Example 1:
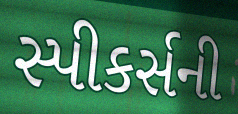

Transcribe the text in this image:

સ્પીકર્સની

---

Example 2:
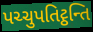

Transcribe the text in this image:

પચ્ચુપતિટ્ઠન્તિ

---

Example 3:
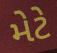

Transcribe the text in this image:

મેટે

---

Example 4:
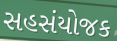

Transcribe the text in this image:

સહસંયોજક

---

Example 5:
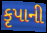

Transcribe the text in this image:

કૃપાની